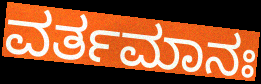
ವರ್ತಮಾನಃ